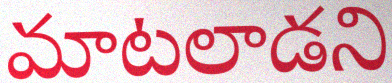
మాటలాడని